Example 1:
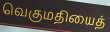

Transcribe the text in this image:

வெகுமதியைத்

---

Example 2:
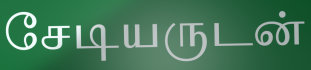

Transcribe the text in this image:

சேடியருடன்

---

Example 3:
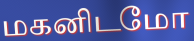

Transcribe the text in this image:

மகனிடமோ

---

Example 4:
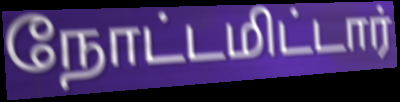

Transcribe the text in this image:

நோட்டமிட்டார்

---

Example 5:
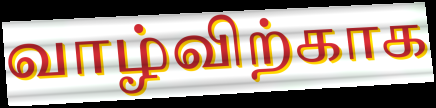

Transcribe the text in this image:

வாழ்விற்காக